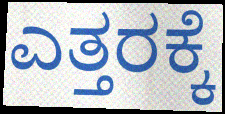
ಎತ್ತರಕ್ಕೆ